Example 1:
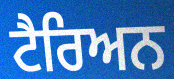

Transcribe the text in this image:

ਟੈਰਿਅਨ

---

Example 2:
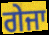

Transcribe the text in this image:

ਗੇਜਾ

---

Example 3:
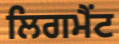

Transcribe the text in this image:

ਲਿਗਮੈਂਟ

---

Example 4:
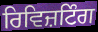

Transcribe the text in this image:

ਰਿਵਿਜ਼ਟਿੰਗ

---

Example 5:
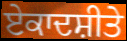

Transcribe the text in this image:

ਏਕਾਦਸ਼ੀਤੇ